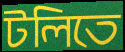
টলিতে